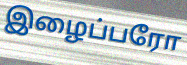
இழைப்பரோ